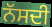
ਨੱਸਦੀ